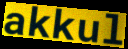
akkul